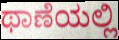
ಥಾಣೆಯಲ್ಲಿ